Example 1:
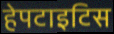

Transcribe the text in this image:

हेपटाइटिस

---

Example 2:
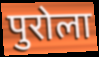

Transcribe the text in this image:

पुरोला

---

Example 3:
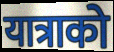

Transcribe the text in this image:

यात्राको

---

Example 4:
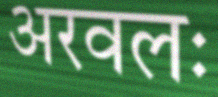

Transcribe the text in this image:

अरवलः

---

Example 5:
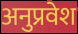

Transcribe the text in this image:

अनुप्रवेश